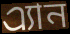
এ্যান